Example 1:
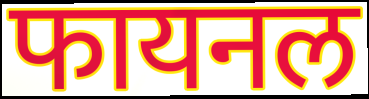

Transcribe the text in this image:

फायनल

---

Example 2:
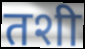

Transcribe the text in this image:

तशी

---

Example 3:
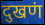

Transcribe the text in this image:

दुखणं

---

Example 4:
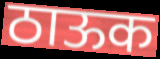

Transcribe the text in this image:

ठाऊक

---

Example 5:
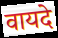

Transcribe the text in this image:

वायदे